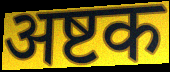
अष्टक